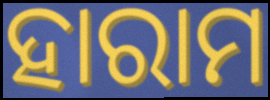
ହାରାମ